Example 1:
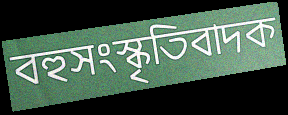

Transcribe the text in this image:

বহুসংস্কৃতিবাদক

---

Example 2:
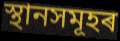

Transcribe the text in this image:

স্থানসমূহৰ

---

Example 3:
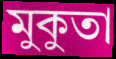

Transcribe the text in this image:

মুকুতা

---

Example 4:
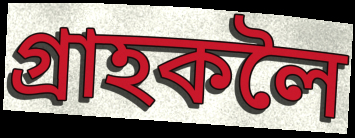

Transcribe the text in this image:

গ্ৰাহকলৈ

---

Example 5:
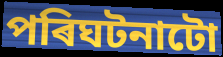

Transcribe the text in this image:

পৰিঘটনাটো